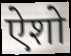
ऐशो